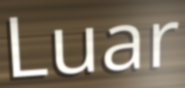
Luar